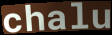
chalu